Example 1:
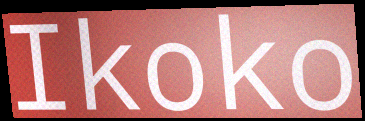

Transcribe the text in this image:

Ikoko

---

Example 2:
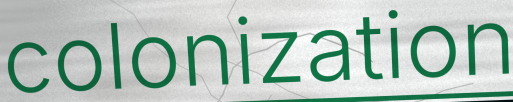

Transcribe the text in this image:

colonization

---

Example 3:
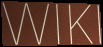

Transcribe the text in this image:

WIKI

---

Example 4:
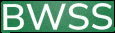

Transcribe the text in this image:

BWSS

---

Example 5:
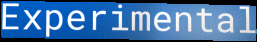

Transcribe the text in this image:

Experimental